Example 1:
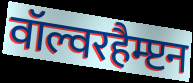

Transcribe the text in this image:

वॉल्वरहैम्प्टन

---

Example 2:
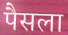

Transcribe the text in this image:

पैसला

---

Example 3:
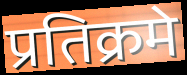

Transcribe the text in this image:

प्रतिक्रमे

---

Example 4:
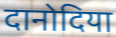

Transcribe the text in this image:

दानोदिया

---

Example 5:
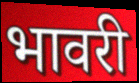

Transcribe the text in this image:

भावरी